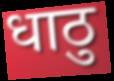
धाठु